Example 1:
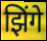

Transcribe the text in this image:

झिंगे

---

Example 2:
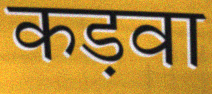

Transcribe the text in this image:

कड़वा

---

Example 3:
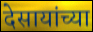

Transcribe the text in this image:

देसायांच्या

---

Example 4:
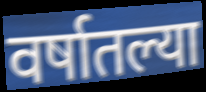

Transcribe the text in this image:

वर्षातल्या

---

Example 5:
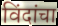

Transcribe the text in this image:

विंदांचा